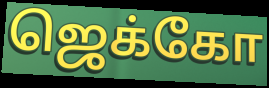
ஜெக்கோ